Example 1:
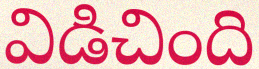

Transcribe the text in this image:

విడిచింది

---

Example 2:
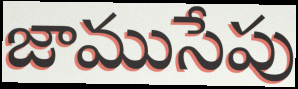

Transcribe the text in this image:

జాముసేపు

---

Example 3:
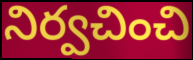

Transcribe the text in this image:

నిర్వచించి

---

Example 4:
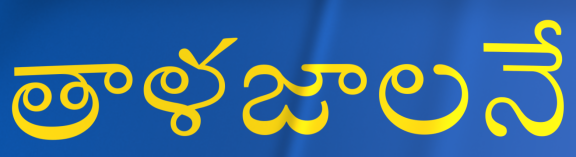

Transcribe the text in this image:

తాళజాలనే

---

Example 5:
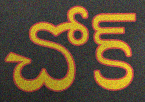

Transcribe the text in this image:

చోక్